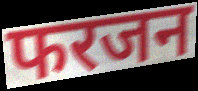
फरजन